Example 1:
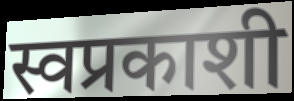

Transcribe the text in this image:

स्वप्रकाशी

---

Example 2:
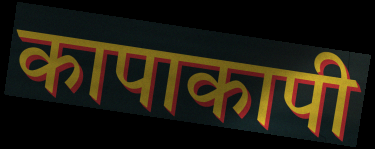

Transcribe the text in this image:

कापाकापी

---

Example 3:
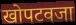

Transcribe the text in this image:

खोपटवजा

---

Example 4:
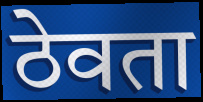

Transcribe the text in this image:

ठेवता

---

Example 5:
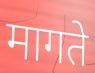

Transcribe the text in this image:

मागते